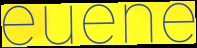
euene